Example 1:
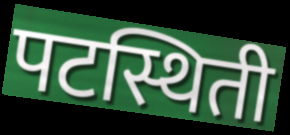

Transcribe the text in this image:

पटस्थिती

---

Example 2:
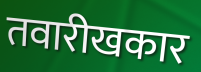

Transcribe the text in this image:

तवारीखकार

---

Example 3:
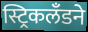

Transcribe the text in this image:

स्ट्रिकलँडने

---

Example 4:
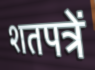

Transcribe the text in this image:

शतपत्रें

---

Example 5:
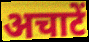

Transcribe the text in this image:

अचाटें